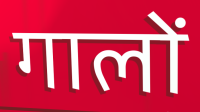
गालों